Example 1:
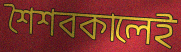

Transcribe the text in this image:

শৈশবকালেই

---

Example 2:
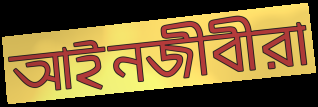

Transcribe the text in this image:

আইনজীবীরা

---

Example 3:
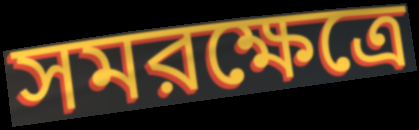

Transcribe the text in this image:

সমরক্ষেত্রে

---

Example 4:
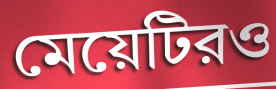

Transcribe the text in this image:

মেয়েটিরও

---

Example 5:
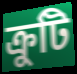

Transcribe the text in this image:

ক্রুটি